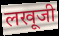
लखूजी